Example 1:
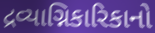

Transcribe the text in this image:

દ્રવ્યાગ્નિકારિકાનો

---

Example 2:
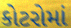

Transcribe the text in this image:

કોટરોમાં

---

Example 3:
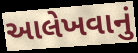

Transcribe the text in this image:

આલેખવાનું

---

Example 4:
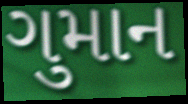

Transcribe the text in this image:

ગુમાન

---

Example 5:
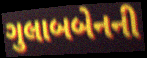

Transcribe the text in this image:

ગુલાબબેનની